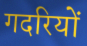
गदरियों